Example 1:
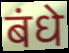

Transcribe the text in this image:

बंधे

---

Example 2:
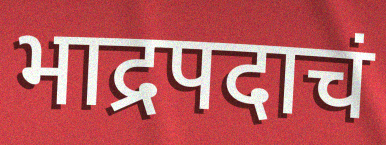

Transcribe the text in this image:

भाद्रपदाचं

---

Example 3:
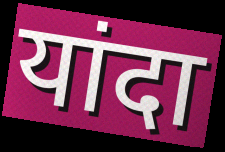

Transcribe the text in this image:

यांदा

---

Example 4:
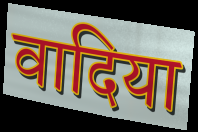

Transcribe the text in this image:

वादिया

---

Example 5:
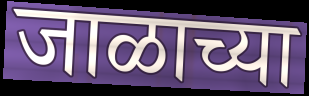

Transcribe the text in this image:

जाळाच्या